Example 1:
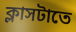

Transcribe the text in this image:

ক্লাসটাতে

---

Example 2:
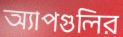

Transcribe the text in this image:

অ্যাপগুলির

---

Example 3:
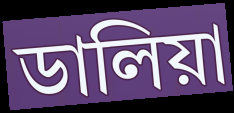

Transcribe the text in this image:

ডালিয়া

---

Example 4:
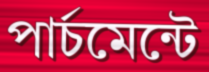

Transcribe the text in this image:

পার্চমেন্টে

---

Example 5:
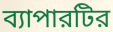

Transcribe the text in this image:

ব্যাপারটির